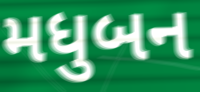
મધુબન